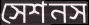
সেশনস